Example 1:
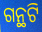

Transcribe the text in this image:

ଗନ୍ଥଟି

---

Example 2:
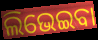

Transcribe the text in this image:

ଲିଭେଇବା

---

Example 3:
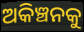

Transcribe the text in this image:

ଅକିଞ୍ଚନକୁ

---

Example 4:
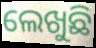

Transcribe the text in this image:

ଲେଖୁଛି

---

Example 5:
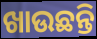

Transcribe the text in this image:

ଖାଉଛନ୍ତି